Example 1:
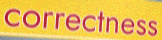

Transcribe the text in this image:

correctness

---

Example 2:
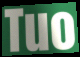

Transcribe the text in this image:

Tuo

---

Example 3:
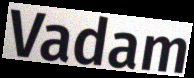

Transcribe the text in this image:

Vadam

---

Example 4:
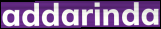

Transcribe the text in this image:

addarinda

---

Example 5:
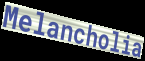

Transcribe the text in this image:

Melancholia